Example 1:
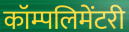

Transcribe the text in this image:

कॉम्पलिमेंटरी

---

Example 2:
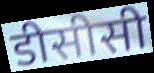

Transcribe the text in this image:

डीसीसी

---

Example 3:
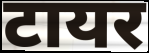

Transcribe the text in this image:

टायर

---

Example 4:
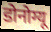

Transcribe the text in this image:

डोनोग्यू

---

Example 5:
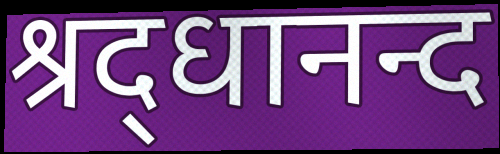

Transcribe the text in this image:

श्रद्धानन्द